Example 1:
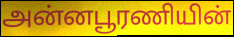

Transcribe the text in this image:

அன்னபூரணியின்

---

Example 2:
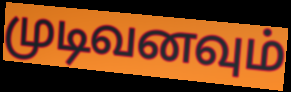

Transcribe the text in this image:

முடிவனவும்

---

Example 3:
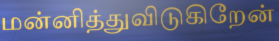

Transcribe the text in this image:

மன்னித்துவிடுகிறேன்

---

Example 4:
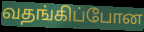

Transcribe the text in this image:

வதங்கிப்போன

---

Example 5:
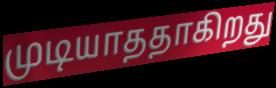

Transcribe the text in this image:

முடியாததாகிறது